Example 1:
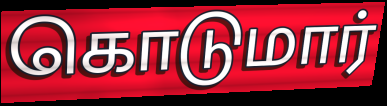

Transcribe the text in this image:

கொடுமார்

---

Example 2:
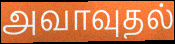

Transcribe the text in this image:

அவாவுதல்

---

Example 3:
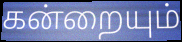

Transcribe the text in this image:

கன்றையும்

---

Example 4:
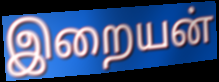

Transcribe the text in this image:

இறையன்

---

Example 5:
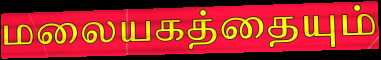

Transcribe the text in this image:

மலையகத்தையும்